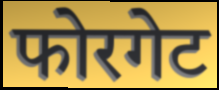
फोरगेट